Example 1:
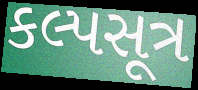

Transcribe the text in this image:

કલ્પસૂત્ર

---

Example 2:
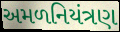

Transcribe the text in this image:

અમળનિયંત્રણ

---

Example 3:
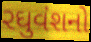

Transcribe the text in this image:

રઘુવંશનો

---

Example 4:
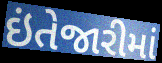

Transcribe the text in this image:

ઇંતેજારીમાં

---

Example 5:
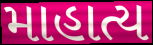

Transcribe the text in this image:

માહાત્ય